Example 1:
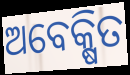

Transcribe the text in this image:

ଅବେକ୍ଷିତ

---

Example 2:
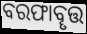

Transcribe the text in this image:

ବରଫାବୄତ୍ତ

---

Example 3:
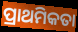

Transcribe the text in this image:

ପ୍ରାଥମିକତା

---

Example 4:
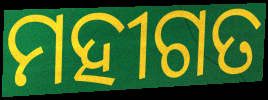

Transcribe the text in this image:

ମହୀଗତ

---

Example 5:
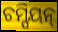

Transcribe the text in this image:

ଚମ୍ପିୟନ୍